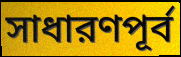
সাধারণপূর্ব